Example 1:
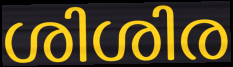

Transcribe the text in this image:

ശിശിര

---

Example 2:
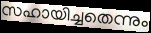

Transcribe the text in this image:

സഹായിച്ചതെന്നും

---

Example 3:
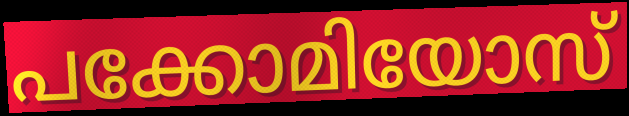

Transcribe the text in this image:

പക്കോമിയോസ്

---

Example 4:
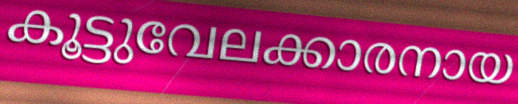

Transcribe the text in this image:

കൂട്ടുവേലക്കാരനായ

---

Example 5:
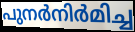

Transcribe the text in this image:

പുനർനിർമിച്ച